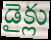
డైక్లు